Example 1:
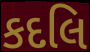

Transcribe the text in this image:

કદલિ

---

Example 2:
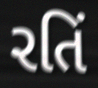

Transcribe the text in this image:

રતિં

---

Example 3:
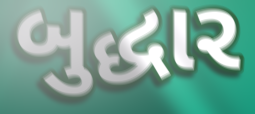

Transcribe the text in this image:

બુદ્ધાર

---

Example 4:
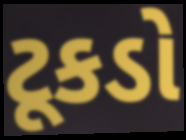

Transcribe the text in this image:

ટૂકડો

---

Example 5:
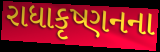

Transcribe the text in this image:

રાધાકૃષ્ણનના